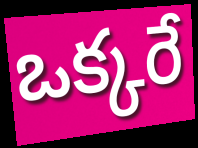
ఒక్కరే